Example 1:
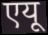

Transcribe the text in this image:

एयू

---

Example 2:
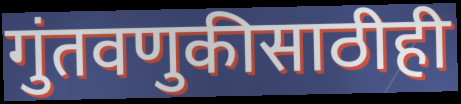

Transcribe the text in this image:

गुंतवणुकीसाठीही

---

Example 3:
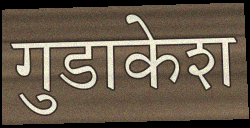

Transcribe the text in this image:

गुडाकेश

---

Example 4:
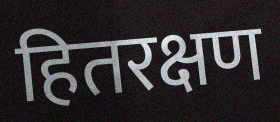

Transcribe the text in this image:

हितरक्षण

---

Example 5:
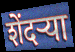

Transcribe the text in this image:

शेंदर्‍या